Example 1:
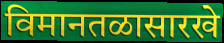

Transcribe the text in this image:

विमानतळासारखे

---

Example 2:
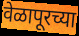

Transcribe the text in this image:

वेळापूरच्या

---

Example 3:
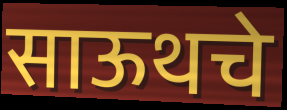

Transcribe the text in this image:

साऊथचे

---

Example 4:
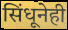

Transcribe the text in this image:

सिंधूनेही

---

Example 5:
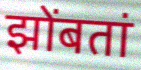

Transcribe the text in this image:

झोंबतां